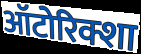
ऑटोरिक्शा